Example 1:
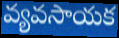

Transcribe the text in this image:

వ్యవసాయక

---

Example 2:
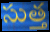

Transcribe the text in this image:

సుత్త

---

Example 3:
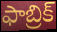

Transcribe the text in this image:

ఫాబ్రిక్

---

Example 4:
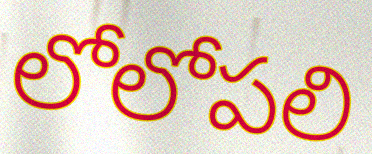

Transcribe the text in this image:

లోలోపలి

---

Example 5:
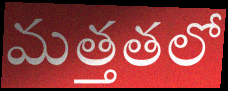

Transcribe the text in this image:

మత్తతలో